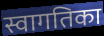
स्वागतिका